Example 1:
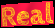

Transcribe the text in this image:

Real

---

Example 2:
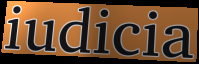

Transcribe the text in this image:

iudicia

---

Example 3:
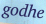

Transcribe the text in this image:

godhe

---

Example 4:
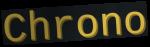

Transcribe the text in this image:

Chrono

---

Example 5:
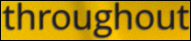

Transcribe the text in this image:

throughout